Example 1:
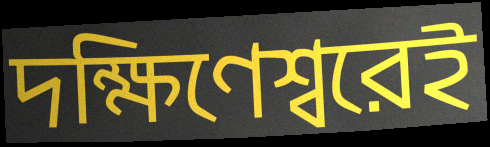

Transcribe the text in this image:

দক্ষিণেশ্বরেই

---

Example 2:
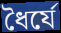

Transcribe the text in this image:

ধৈর্যে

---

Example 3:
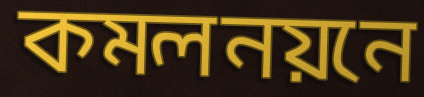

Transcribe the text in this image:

কমলনয়নে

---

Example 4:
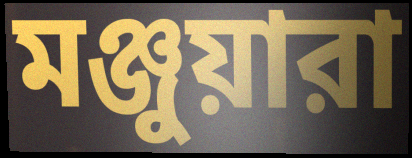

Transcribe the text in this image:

মঞ্জুয়ারা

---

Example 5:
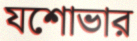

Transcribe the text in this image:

যশোভার